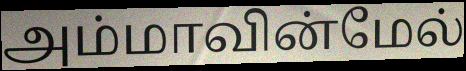
அம்மாவின்மேல்